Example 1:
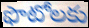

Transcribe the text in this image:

ఫొటోలకు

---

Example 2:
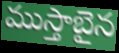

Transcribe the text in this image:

ముస్తాబైన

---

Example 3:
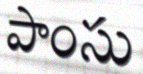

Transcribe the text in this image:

పాంసు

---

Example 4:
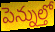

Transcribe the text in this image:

పెన్నుల్తో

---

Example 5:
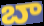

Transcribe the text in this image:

బా